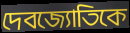
দেবজ্যোতিকে